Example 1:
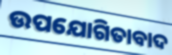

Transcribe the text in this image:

ଉପଯୋଗିତାବାଦ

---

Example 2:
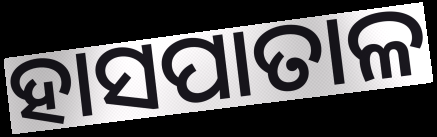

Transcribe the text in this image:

ହାସପାତାଳ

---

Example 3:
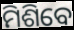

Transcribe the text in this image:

ମିଶିବେ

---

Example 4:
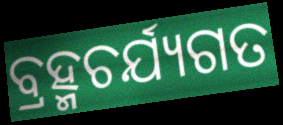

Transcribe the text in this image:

ବ୍ରହ୍ମଚର୍ଯ୍ୟଗତ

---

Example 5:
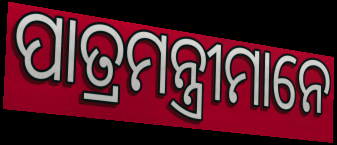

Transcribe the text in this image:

ପାତ୍ରମନ୍ତ୍ରୀମାନେ